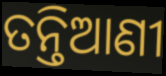
ତନ୍ତିଆଣୀ